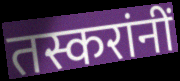
तस्करांनीं